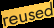
reused